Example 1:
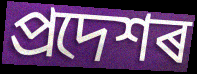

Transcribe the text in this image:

প্ৰদেশৰ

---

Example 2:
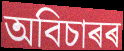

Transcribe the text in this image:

অবিচাৰৰ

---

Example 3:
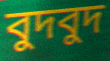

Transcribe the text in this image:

বুদবুদ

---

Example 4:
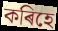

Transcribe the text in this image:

কৰিহে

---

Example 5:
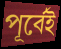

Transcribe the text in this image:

পূৰ্বেই